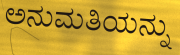
ಅನುಮತಿಯನ್ನು